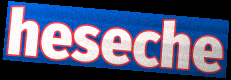
heseche